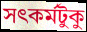
সৎকর্মটুকু